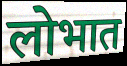
लोभात